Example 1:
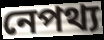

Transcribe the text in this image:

নেপথ্য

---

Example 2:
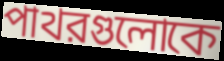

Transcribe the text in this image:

পাথরগুলোকে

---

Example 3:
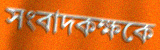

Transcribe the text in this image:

সংবাদকক্ষকে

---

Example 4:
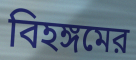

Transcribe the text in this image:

বিহঙ্গমের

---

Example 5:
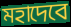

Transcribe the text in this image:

মহাদেবে